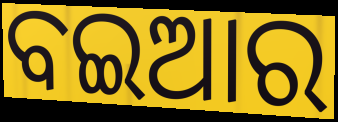
ବଇଆର